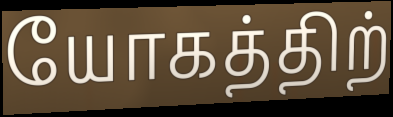
யோகத்திற்